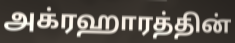
அக்ரஹாரத்தின்